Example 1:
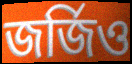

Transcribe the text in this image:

জর্জিও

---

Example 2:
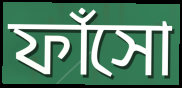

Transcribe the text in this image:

ফাঁসো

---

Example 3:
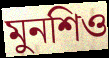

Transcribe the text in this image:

মুনশিও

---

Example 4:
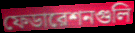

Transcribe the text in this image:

ফেডারেশনগুলি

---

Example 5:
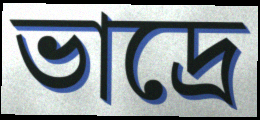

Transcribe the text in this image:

ভাদ্রে